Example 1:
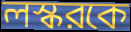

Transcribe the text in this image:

লস্করকে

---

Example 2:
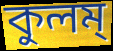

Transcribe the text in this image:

কুলম্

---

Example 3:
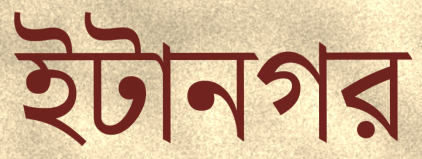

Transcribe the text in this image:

ইটানগর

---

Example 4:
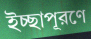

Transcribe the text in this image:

ইচ্ছাপূরণে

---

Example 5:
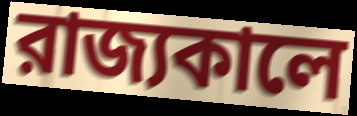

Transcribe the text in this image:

রাজ্যকালে